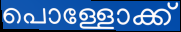
പൊള്ളോക്ക്